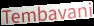
Tembavani